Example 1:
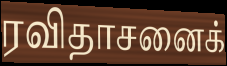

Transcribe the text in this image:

ரவிதாசனைக்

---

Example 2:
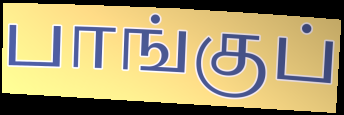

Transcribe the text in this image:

பாங்குப்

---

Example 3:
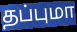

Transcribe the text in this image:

தப்புமா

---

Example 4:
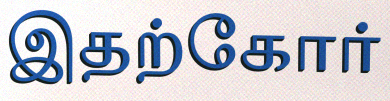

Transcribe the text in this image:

இதற்கோர்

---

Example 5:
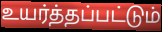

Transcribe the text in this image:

உயர்த்தப்பட்டும்